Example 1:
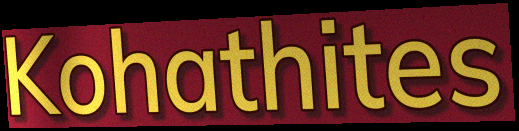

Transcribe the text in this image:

Kohathites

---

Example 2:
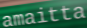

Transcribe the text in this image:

amaitta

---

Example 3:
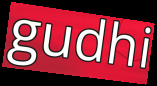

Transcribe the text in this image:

gudhi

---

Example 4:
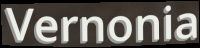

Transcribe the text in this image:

Vernonia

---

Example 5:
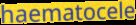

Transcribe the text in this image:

haematocele